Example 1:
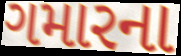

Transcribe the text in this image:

ગમારના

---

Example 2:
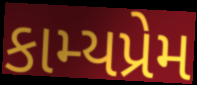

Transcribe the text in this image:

કામ્યપ્રેમ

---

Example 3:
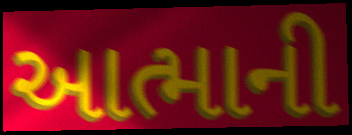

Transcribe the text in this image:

આત્માની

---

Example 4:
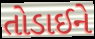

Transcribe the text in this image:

તોડાઈને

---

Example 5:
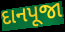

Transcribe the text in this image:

દાનપૂજા